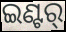
ଇଣ୍ଟର୍